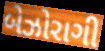
બેઝોરાગી